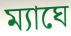
ম্যাঘে